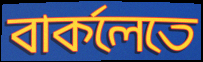
বার্কলেতে